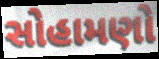
સોહામણો